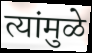
त्यांमुळे